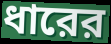
ধারের